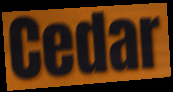
Cedar